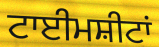
ਟਾਈਮਸ਼ੀਟਾਂ